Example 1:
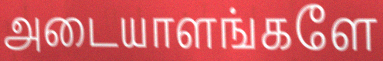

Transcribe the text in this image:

அடையாளங்களே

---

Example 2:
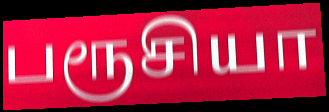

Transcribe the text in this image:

பரூசியா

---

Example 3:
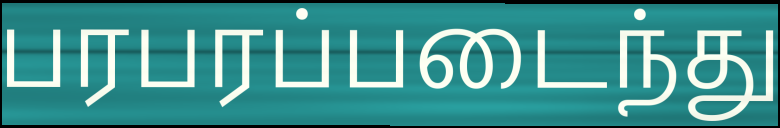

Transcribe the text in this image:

பரபரப்படைந்து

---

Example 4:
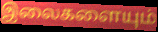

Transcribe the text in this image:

இலைகளையும்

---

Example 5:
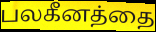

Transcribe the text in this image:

பலகீனத்தை